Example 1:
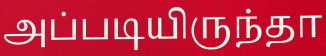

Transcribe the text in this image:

அப்படியிருந்தா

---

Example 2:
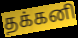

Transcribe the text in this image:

தக்கனி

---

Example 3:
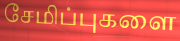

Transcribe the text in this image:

சேமிப்புகளை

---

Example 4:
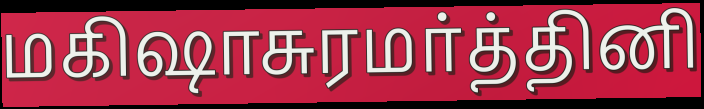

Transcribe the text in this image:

மகிஷாசுரமர்த்தினி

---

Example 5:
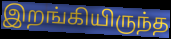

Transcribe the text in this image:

இறங்கியிருந்த